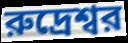
রুদ্রেশ্বর